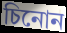
চিনোন